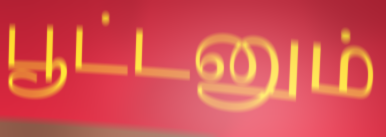
பூட்டனும்